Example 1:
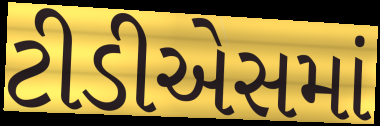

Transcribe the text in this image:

ટીડીએસમાં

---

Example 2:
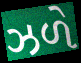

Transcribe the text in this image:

ઝળે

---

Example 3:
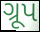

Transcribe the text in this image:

ગ્રૂપ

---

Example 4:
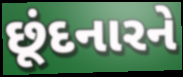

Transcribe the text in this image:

છૂંદનારને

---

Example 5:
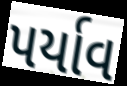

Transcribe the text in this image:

પર્યાવ